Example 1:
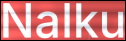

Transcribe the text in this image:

Nalku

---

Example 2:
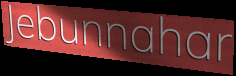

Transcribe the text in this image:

Jebunnahar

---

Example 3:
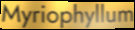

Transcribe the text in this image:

Myriophyllum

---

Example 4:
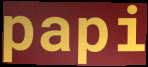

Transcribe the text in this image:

papi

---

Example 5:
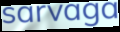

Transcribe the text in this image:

sarvaga